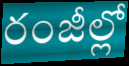
రంజీల్లో